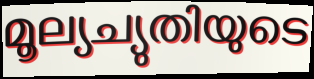
മൂല്യച്യുതിയുടെ